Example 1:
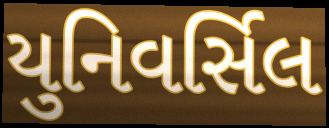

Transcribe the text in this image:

યુનિવર્સિલ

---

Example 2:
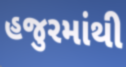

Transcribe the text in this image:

હજુરમાંથી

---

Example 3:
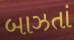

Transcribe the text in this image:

બાઝતાં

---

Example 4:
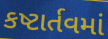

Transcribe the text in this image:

કષ્ટાર્તવમાં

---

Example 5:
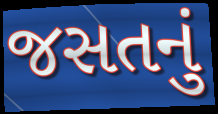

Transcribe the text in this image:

જસતનું